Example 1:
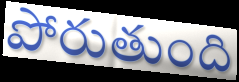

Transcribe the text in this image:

పోరుతుంది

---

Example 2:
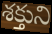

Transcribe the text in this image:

శక్తుని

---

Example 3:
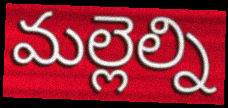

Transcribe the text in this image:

మల్లెల్ని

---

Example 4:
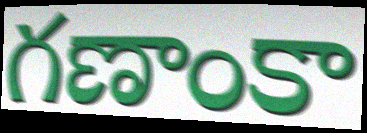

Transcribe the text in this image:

గణాంకా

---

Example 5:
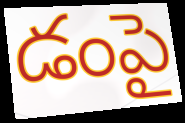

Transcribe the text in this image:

డంపై